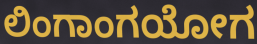
ಲಿಂಗಾಂಗಯೋಗ